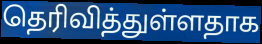
தெரிவித்துள்ளதாக